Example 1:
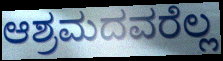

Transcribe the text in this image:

ಆಶ್ರಮದವರೆಲ್ಲ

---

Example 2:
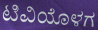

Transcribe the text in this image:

ಟಿವಿಯೊಳಗ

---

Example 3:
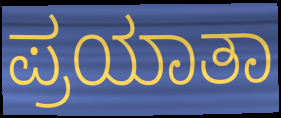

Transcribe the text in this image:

ಪ್ರಯಾತಾ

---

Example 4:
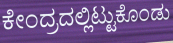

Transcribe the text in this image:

ಕೇಂದ್ರದಲ್ಲಿಟ್ಟುಕೊಂಡು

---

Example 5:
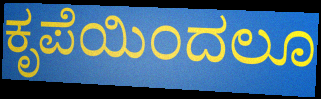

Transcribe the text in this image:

ಕೃಪೆಯಿಂದಲೂ